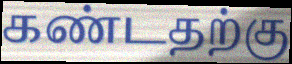
கண்டதற்கு